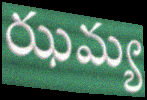
ఝమ్య